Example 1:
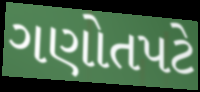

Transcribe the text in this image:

ગણોતપટે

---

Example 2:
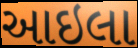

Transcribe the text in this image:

આઇલા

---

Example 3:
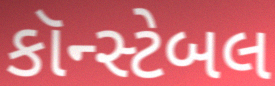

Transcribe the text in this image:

કૉન્સ્ટેબલ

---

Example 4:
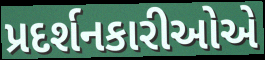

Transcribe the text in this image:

પ્રદર્શનકારીઓએ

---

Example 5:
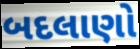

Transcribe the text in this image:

બદલાણો